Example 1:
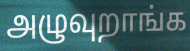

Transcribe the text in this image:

அழுவுறாங்க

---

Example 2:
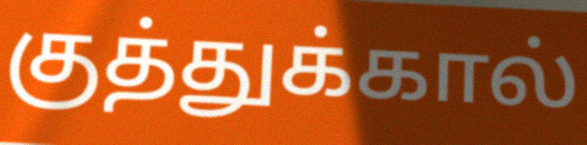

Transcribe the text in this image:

குத்துக்கால்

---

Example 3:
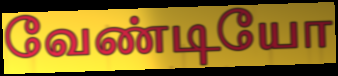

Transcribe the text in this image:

வேண்டியோ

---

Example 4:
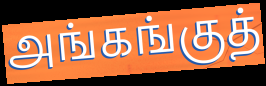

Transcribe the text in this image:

அங்கங்குத்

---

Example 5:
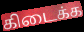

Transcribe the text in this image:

கிடைக்க